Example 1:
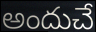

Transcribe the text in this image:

అందుచే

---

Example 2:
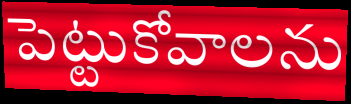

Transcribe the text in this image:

పెట్టుకోవాలను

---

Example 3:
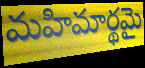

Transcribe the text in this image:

మహిమార్థమై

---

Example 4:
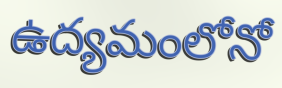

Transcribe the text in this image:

ఉద్యమంలోనో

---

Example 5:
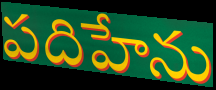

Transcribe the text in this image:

పదిహేను